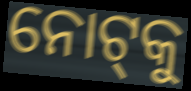
ନୋଟ୍‌କୁ